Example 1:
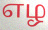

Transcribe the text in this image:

எழ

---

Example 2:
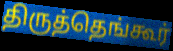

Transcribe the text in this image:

திருத்தெங்கூர்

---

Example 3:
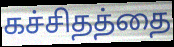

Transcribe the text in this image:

கச்சிதத்தை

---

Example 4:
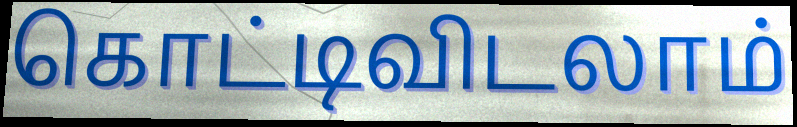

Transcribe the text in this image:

கொட்டிவிடலாம்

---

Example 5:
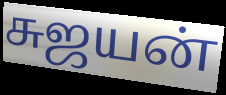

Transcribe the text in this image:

சுஜயன்